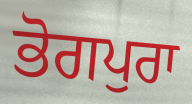
ਭੋਗਪੁਰਾ